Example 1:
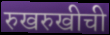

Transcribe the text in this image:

रुखरुखीची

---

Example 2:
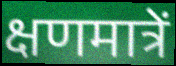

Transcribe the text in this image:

क्षणमात्रें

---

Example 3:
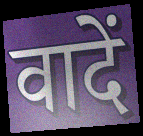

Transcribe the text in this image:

वादें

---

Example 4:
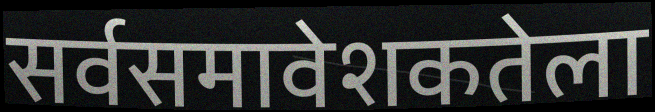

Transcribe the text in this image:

सर्वसमावेशकतेला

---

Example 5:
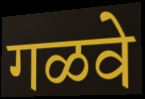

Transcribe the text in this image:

गळवे